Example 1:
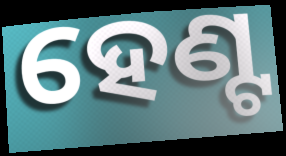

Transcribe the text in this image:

ହେଣ୍ଟ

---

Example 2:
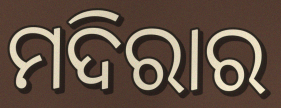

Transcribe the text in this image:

ମଦିରାର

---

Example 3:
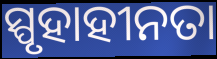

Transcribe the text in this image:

ସ୍ପୃହାହୀନତା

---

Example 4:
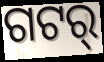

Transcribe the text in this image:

ଗଟର୍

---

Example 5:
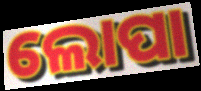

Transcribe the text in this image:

ଲୋପା